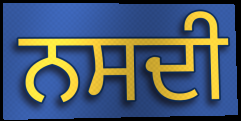
ਨਸਦੀ